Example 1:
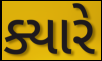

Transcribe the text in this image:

ક્યારે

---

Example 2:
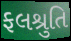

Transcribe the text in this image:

ફલશ્રુતિ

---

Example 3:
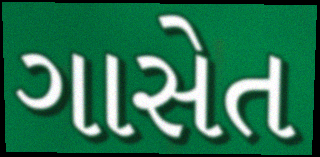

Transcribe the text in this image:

ગાસેત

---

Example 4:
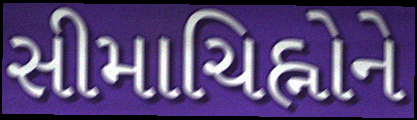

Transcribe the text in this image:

સીમાચિહ્નોને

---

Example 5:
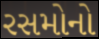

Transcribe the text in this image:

રસમોનો